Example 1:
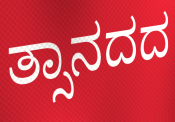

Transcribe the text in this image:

ತ್ಸಾನದದ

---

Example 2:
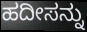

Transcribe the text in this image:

ಹದೀಸನ್ನು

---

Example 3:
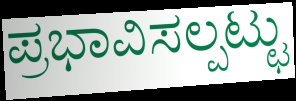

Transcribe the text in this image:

ಪ್ರಭಾವಿಸಲ್ಪಟ್ಟು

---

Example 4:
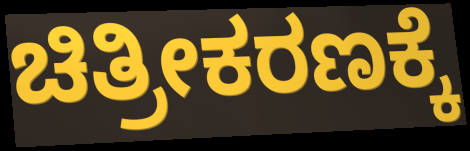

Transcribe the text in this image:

ಚಿತ್ರೀಕರಣಕ್ಕೆ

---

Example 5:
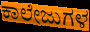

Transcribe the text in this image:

ಕಾಲೇಜುಗಳ